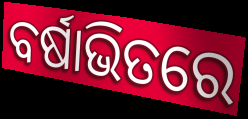
ବର୍ଷାଭିତରେ